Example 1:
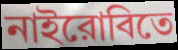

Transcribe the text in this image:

নাইরোবিতে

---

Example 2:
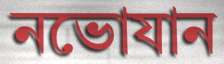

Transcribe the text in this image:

নভোযান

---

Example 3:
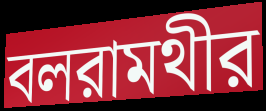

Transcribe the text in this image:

বলরামথীর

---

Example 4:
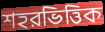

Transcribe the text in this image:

শহরভিত্তিক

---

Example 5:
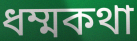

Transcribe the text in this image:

ধম্মকথা